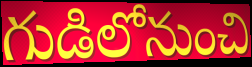
గుడిలోనుంచి